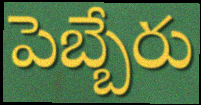
పెబ్బేరు